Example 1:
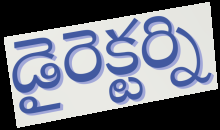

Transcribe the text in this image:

డైరెక్టర్ని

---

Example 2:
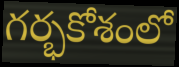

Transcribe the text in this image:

గర్భకోశంలో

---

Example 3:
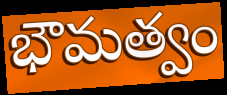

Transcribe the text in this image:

భౌమత్వం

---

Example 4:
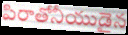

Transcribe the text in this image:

పిరాతోనీయుడైన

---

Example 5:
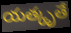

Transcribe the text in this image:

యత్కృతే